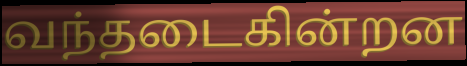
வந்தடைகின்றன